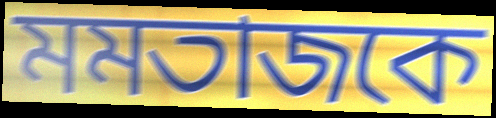
মমতাজকে